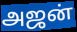
அஜன்